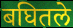
बघितले